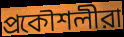
প্রকৌশলীরা